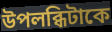
উপলব্ধিটাকে